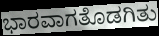
ಭಾರವಾಗತೊಡಗಿತು